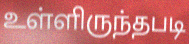
உள்ளிருந்தபடி